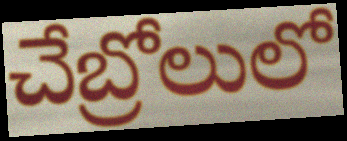
చేబ్రోలులో